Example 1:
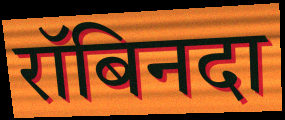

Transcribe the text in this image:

रॉबिनदा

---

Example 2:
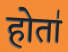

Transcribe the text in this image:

होता॑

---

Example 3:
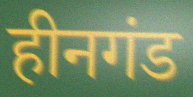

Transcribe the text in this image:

हीनगंड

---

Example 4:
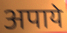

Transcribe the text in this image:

अपाये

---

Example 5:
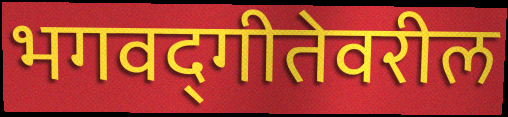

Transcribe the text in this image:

भगवद्‌गीतेवरील